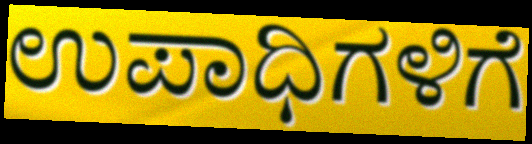
ಉಪಾಧಿಗಳಿಗೆ